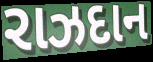
રાઝદાન